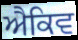
ਐਕਿਵ